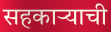
सहकाऱ्याची